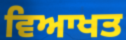
ਵਿਆਖਤ